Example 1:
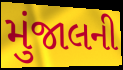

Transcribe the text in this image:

મુંજાલની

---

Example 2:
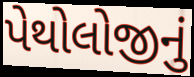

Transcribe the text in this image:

પેથોલોજીનું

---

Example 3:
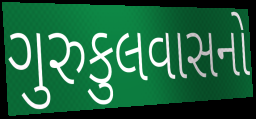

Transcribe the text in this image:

ગુરુકુલવાસનો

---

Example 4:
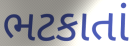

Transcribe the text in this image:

ભટકાતાં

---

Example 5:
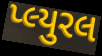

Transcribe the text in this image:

પ્લ્યુરલ